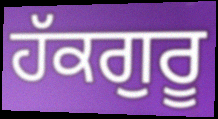
ਹੱਕਗੁਰੂ